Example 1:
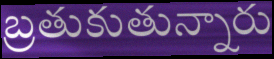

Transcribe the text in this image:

బ్రతుకుతున్నారు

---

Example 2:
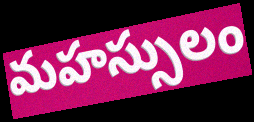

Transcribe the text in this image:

మహస్సులం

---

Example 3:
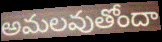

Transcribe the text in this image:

అమలవుతోందా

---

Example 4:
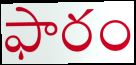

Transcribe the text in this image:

ఫారం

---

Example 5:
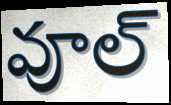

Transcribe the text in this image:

వూల్